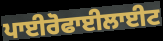
ਪਾਈਰੋਫਾਈਲਾਈਟ